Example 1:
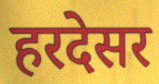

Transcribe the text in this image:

हरदेसर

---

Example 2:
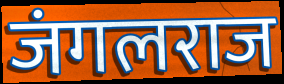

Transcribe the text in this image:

जंगलराज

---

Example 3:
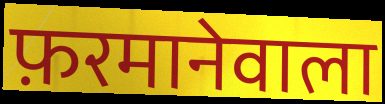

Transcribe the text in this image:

फ़रमानेवाला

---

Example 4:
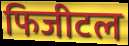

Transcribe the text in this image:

फिजीटल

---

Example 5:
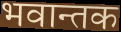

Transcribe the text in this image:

भवान्तक